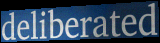
deliberated